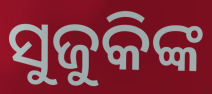
ସୁଜୁକିଙ୍କ